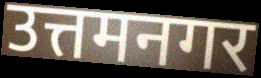
उत्तमनगर